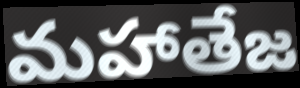
మహాతేజ